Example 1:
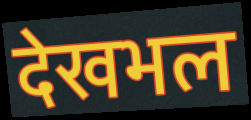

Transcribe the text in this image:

देखभल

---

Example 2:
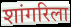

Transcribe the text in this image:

शांगरिला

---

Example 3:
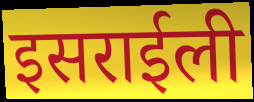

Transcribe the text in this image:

इसराईली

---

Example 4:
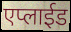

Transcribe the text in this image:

एप्लाईड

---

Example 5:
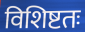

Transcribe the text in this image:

विशिष्टतः